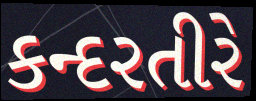
કન્દરતીરે